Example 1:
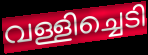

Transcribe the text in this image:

വള്ളിച്ചെടി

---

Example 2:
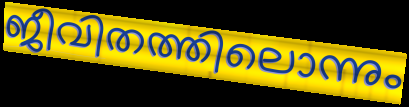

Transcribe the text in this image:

ജീവിതത്തിലൊന്നും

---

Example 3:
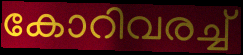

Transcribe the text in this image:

കോറിവരച്ച്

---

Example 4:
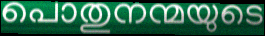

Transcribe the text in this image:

പൊതുനന്മയുടെ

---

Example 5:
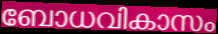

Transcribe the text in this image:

ബോധവികാസം